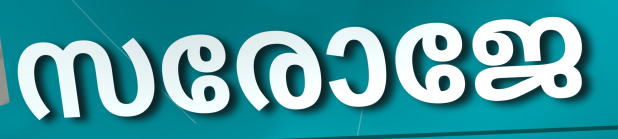
സരോജേ